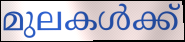
മുലകൾക്ക്